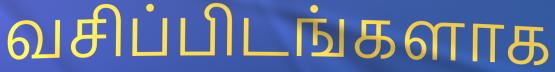
வசிப்பிடங்களாக